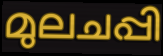
മുലചപ്പി